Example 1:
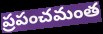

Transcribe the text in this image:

ప్రపంచమంత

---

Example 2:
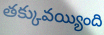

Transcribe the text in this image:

తక్కువయ్యింది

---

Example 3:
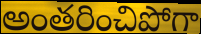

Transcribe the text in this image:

అంతరించిపోగా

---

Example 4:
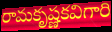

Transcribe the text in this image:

రామకృష్ణకవిగారి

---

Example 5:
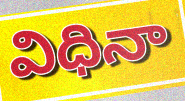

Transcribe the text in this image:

విధినా